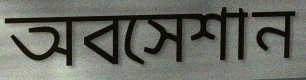
অবসেশান